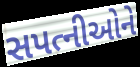
સપત્નીઓને